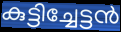
കുട്ടിച്ചേട്ടൻ